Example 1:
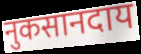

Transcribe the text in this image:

नुकसानदाय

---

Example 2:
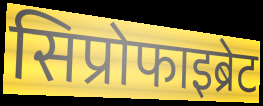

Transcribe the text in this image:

सिप्रोफाइब्रेट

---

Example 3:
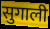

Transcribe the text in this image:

सुगाली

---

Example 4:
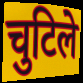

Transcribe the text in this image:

चुटिले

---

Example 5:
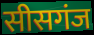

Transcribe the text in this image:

सीसगंज